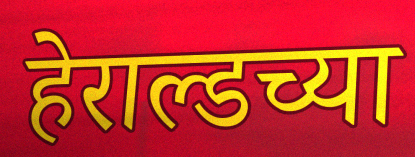
हेराल्डच्या